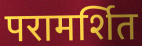
परामर्शित